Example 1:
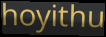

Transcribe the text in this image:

hoyithu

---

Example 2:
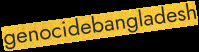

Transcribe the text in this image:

genocidebangladesh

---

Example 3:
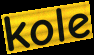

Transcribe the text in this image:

kole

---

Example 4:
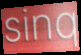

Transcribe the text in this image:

sinq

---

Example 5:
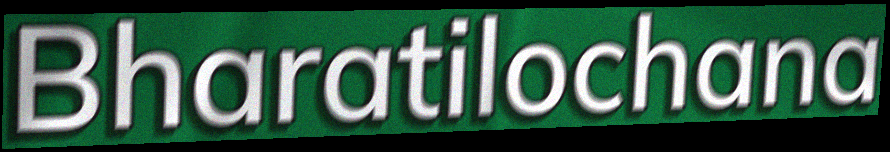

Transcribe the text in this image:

Bharatilochana